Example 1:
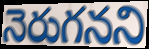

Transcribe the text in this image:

నెరుగనని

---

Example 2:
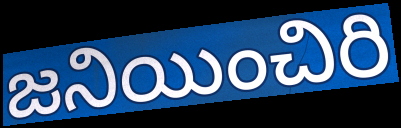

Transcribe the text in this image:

జనియించిరి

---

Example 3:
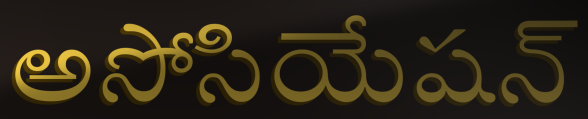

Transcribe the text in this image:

అసోసియేషన్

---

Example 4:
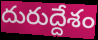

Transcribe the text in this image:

దురుద్దేశం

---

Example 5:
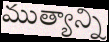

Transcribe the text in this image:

ముత్యాన్ని